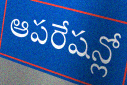
ఆపరేషన్లో